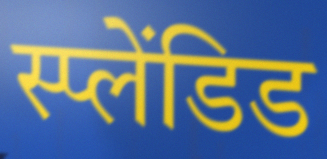
स्प्लेंडिड